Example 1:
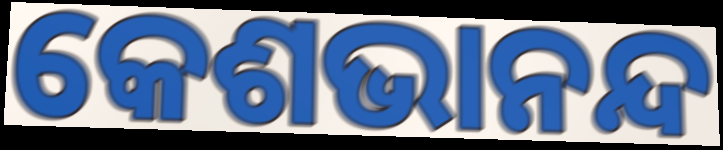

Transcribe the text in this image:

କେଶଭାନନ୍ଦ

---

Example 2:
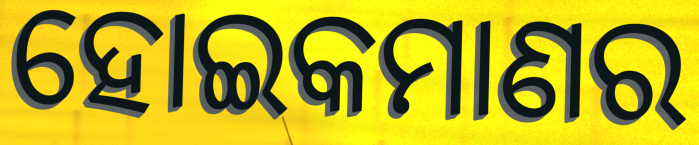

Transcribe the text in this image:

ହୋଇକମାଣର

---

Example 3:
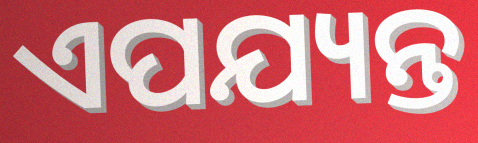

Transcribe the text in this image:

ଏପଯ୍ୟନ୍ତ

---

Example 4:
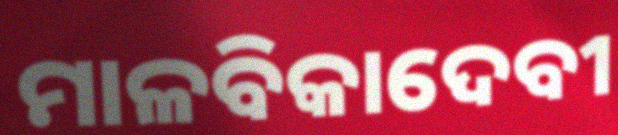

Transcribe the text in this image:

ମାଳବିକାଦେବୀ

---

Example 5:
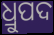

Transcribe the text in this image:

ଧ୍ରୁପଦ